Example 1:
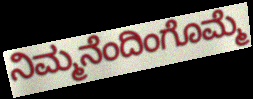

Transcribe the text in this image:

ನಿಮ್ಮನೆಂದಿಂಗೊಮ್ಮೆ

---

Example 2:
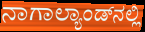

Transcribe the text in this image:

ನಾಗಾಲ್ಯಾಂಡ್‌ನಲ್ಲಿ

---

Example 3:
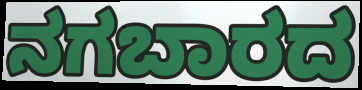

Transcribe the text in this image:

ನಗಬಾರದ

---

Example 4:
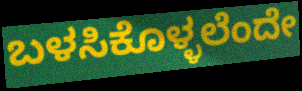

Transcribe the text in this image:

ಬಳಸಿಕೊಳ್ಳಲೆಂದೇ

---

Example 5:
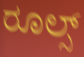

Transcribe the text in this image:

ರೂಲ್ಸ್